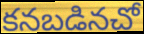
కనబడినచో